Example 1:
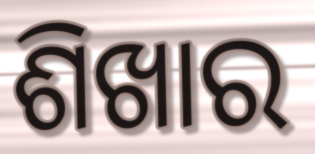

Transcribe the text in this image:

ଶିଖାର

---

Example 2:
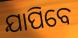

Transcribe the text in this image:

ଯାପିବେ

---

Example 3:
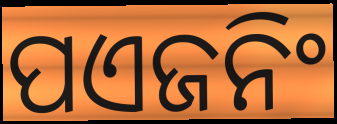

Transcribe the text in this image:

ପଏଜନିଂ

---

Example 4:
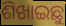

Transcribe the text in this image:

ଶିଖାଇଛୁ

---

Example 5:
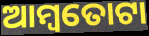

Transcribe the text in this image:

ଆମ୍ବତୋଟା